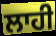
ਲਾਹੀ